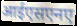
आईएसएनए